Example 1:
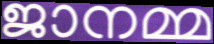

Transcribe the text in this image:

ജാനമ്മ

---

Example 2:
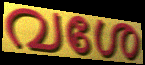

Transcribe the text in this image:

വശേ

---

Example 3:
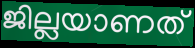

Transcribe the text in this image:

ജില്ലയാണത്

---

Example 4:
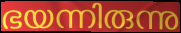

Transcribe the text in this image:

ഭയന്നിരുന്നു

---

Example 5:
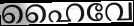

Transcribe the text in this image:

ഹൈവേ